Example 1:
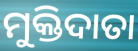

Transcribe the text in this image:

ମୁକ୍ତିଦାତା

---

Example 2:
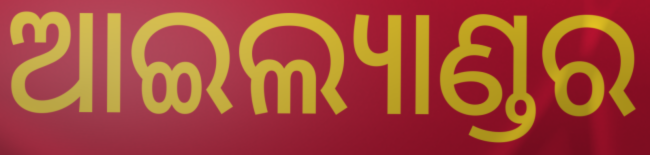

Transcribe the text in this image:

ଆଇଲ୍ୟାଣ୍ଡର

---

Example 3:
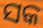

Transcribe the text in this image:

ସକ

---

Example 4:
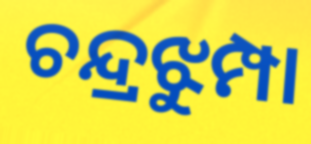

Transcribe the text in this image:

ଚନ୍ଦ୍ରଝୁମ୍ପା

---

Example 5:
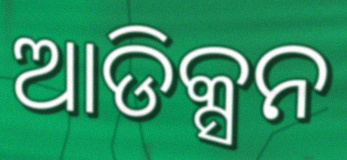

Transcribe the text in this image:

ଆଡିକ୍ସନ